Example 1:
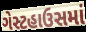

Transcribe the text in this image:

ગેસ્ટહાઉસમાં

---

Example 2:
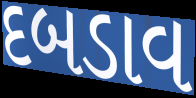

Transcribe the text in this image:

દબડાવ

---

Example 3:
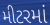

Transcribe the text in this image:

મીટરમાં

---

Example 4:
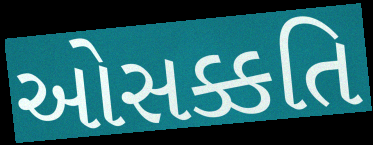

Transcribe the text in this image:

ઓસક્કતિ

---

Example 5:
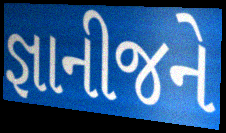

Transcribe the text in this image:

જ્ઞાનીજને